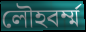
লৌহবর্ম্ম